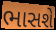
ભાસશે